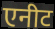
एनीट